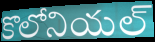
కొలోనియల్